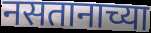
नसतानाच्या